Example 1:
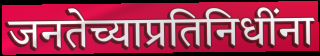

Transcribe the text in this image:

जनतेच्याप्रतिनिधींना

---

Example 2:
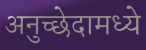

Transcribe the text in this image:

अनुच्छेदामध्ये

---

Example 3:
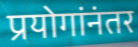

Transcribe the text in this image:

प्रयोगांनंतर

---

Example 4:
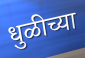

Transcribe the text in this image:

धुळीच्या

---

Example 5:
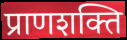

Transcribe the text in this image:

प्राणशक्ति